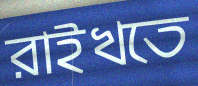
রাইখতে